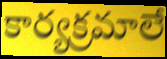
కార్యక్రమాలే